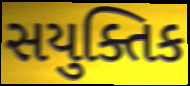
સયુક્તિક